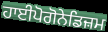
ਹਾਈਪੋਗੋਨੇਡਿਜ਼ਮ